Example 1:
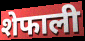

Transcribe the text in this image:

शेफाली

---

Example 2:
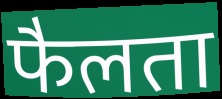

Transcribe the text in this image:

फैलता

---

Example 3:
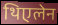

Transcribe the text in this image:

थिएलेन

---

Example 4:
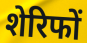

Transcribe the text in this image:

शेरिफों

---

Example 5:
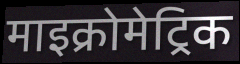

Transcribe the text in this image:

माइक्रोमेट्रिक